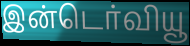
இன்டெர்வியூ